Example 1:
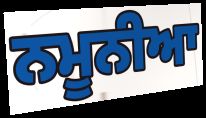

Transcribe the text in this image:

ਨਮੂਨੀਆ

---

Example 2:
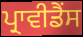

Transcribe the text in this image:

ਪ੍ਰਾਵੀਡੈਂਸ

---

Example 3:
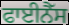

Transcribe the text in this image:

ਫਾਈਨੈੱਸ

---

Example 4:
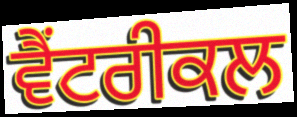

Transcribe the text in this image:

ਵੈਂਟਰੀਕਲ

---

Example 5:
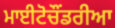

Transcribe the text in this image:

ਮਾਈਟੋਚੌਂਡਰੀਆ